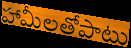
హామీలతోపాటు